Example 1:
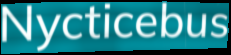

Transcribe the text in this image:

Nycticebus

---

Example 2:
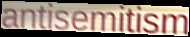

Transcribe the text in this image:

antisemitism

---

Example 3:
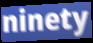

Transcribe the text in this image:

ninety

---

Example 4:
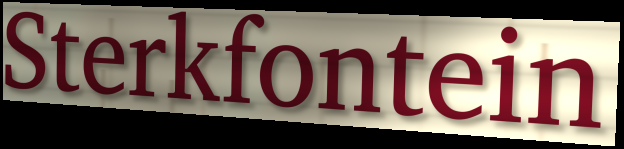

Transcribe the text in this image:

Sterkfontein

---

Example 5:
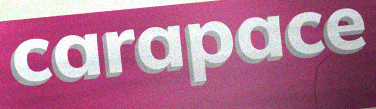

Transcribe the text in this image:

carapace